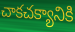
చాకచక్యానికి